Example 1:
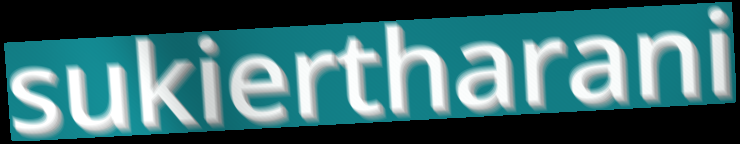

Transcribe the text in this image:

sukiertharani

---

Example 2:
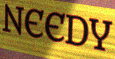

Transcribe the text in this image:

NEEDY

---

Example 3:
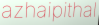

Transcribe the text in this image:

azhaipithal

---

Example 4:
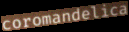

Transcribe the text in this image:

coromandelica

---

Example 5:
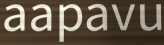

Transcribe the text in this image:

aapavu